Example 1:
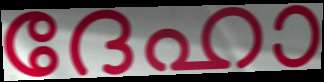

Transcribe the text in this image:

ദേഹാ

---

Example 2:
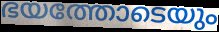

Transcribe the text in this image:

ഭയത്തോടെയും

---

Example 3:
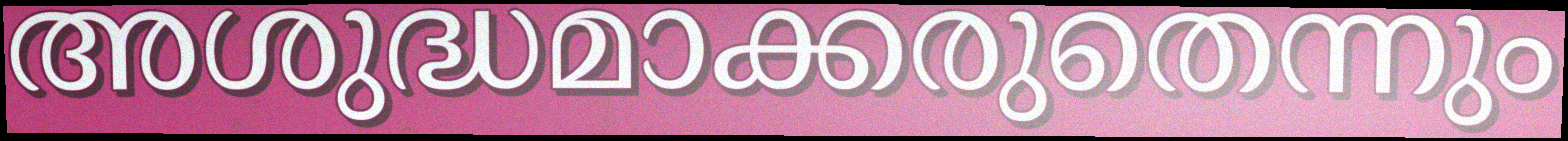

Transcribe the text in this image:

അശുദ്ധമാക്കരുതെന്നും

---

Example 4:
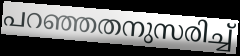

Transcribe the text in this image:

പറഞ്ഞതനുസരിച്ച്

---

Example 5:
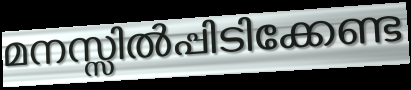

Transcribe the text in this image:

മനസ്സിൽപ്പിടിക്കേണ്ട